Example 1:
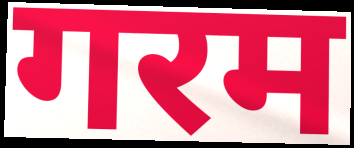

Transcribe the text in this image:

गरम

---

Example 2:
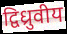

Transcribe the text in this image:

द्विध्रुवीय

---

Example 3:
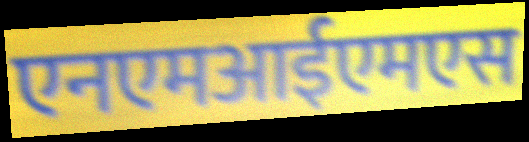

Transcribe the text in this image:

एनएमआईएमएस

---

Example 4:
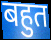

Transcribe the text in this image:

बहुत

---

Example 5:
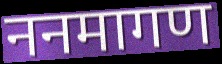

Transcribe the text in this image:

ननमागण